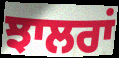
ਝਾਲਰਾਂ